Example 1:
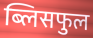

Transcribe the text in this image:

ब्लिसफुल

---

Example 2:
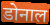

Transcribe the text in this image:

डोनाल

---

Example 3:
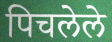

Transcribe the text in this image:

पिचलेले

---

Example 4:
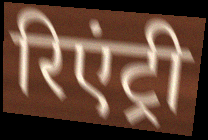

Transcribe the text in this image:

रिएंट्री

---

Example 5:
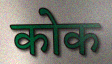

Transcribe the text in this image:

कोक